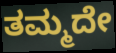
ತಮ್ಮದೇ